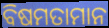
ବିଷମତାମାନ